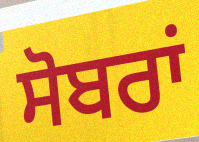
ਸੋਬਰਾਂ